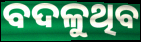
ବଦଳୁଥିବ